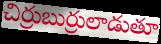
చిర్రుబుర్రులాడుతూ